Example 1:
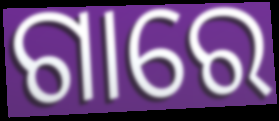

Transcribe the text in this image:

ଗାରେ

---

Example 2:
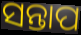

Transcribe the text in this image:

ସନ୍ତାପ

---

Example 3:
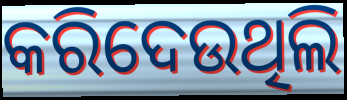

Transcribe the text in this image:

କରିଦେଉଥିଲି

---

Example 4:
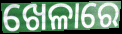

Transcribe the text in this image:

ଖେଳାରେ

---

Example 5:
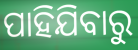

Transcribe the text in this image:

ପାହିଯିବାରୁ